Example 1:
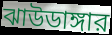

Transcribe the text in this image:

ঝাউডাঙ্গার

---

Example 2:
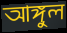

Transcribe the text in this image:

আঙ্গুল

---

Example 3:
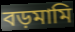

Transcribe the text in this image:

বড়মামি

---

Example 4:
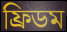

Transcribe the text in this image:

ফ্রিডম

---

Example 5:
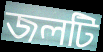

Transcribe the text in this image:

জলটি